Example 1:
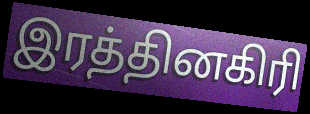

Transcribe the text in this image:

இரத்தினகிரி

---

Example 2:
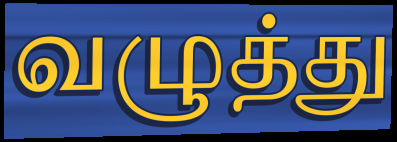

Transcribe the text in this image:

வழுத்து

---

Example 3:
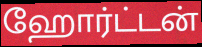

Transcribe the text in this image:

ஹோர்ட்டன்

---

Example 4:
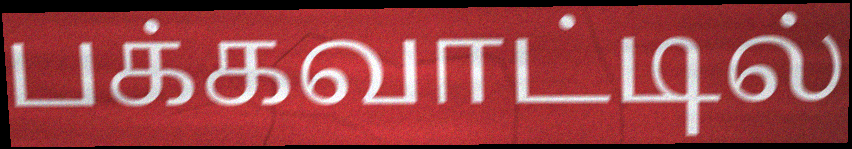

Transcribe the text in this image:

பக்கவாட்டில்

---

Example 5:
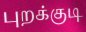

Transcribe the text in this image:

புறக்குடி